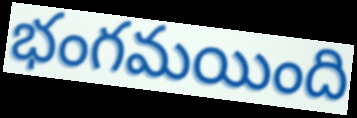
భంగమయింది